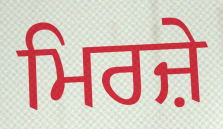
ਮਿਰਜ਼ੇ